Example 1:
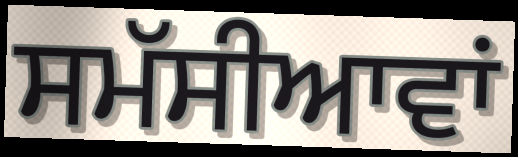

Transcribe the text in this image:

ਸਮੱਸੀਆਵਾਂ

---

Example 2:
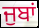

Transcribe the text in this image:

ਜੁਬਾਂ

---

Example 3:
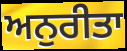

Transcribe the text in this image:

ਅਨੁਰੀਤਾ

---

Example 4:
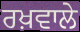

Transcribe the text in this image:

ਰਖ਼ਵਾਲੇ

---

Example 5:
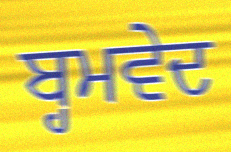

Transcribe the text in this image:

ਬ੍ਹਮਵੇਦ